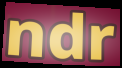
ndr